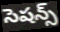
సెషన్స్